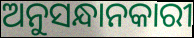
ଅନୁସନ୍ଧାନକାରୀ